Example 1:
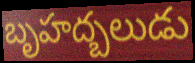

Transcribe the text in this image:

బృహద్బలుడు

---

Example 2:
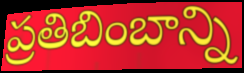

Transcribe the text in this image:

ప్రతిబింబాన్ని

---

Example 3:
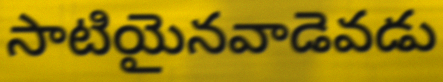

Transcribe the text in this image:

సాటియైనవాడెవడు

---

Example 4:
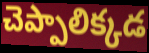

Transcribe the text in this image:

చెప్పాలిక్కడ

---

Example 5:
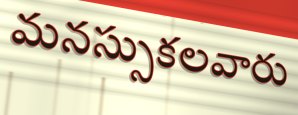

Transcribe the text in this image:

మనస్సుకలవారు